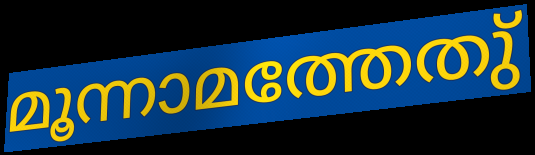
മൂന്നാമത്തേതു്